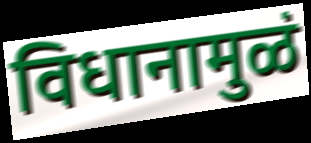
विधानामुळं